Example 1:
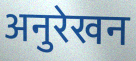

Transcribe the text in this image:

अनुरेखन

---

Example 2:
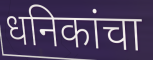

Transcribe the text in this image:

धनिकांचा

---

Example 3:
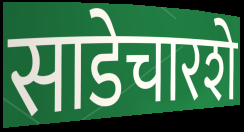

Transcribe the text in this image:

साडेचारशे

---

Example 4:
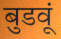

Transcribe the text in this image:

बुडवूं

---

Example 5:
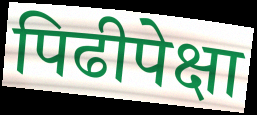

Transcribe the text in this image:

पिढीपेक्षा